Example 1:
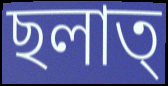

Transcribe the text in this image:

ছলাত্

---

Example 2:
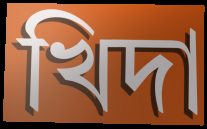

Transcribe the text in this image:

খিদা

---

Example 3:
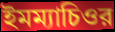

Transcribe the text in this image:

ইমম্যাচিওর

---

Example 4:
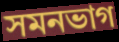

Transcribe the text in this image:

সমনভাগ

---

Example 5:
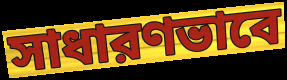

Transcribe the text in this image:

সাধারণভাবে